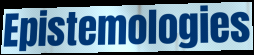
Epistemologies